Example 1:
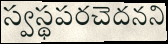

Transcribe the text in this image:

స్వస్థపరచెదనని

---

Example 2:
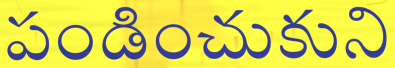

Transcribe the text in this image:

పండించుకుని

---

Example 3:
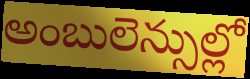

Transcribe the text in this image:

అంబులెన్సుల్లో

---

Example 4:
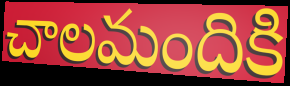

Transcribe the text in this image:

చాలమందికి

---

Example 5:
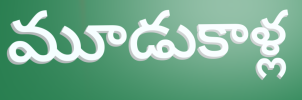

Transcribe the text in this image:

మూడుకాళ్ల